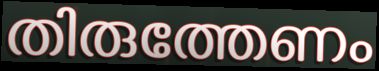
തിരുത്തേണം